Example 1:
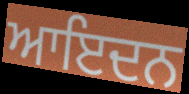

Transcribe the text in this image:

ਆਇਦਨ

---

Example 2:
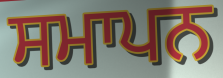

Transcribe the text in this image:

ਸਮਾਪਨ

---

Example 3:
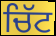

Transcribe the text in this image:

ਚਿੱਟ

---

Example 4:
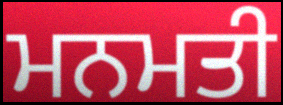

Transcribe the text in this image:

ਮਨਮਤੀ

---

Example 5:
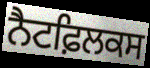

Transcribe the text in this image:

ਨੈਟਫ਼ਿਲਕਸ